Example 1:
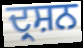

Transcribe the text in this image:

ਦ੍ਰਸ਼ਨ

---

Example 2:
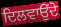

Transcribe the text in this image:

ਦਿਲਵਾਉਂਦੇ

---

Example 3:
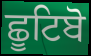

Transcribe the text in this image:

ਛੂਟਿਬੋ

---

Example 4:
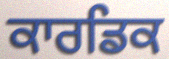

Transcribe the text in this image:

ਕਾਰਡਿਕ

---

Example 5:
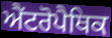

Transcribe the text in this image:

ਐਂਟਰੋਪੈਥਿਕ